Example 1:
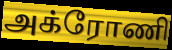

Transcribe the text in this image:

அக்ரோணி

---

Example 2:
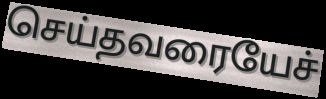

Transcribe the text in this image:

செய்தவரையேச்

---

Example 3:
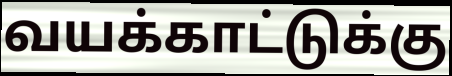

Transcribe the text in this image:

வயக்காட்டுக்கு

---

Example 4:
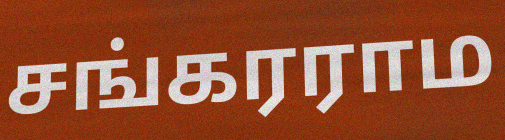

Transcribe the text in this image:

சங்கரராம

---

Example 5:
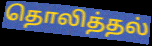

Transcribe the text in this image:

தொலித்தல்